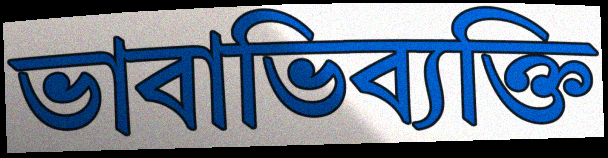
ভাবাভিব্যক্তি